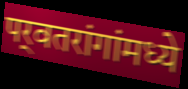
पर्वतरांगांमध्ये